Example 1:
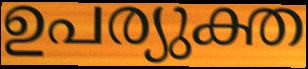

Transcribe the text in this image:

ഉപര്യുക്ത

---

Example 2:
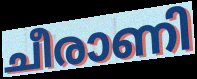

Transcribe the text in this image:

ചീരാണി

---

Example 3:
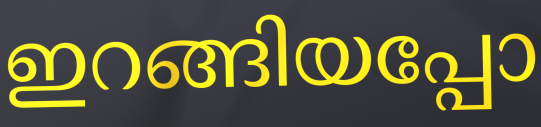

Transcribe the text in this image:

ഇറങ്ങിയപ്പോ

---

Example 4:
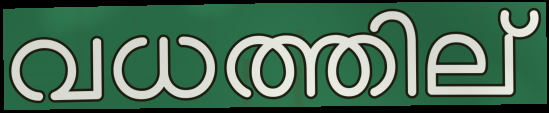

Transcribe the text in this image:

വധത്തില്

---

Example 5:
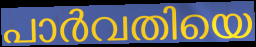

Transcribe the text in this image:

പാർവതിയെ